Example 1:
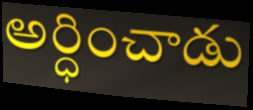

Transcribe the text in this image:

అర్ధించాడు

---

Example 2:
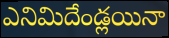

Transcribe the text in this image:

ఎనిమిదేండ్లయినా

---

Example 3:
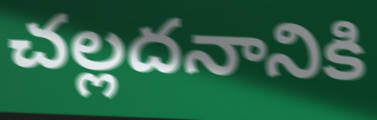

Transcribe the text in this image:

చల్లదనానికి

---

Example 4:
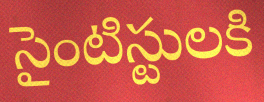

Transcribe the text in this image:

సైంటిస్టులకి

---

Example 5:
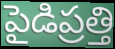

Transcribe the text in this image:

పైడిప్రత్తి